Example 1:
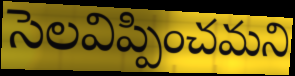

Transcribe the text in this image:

సెలవిప్పించమని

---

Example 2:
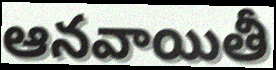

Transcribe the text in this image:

ఆనవాయితీ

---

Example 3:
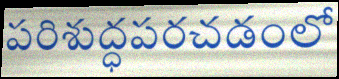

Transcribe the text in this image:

పరిశుద్ధపరచడంలో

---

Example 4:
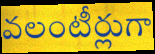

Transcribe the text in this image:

వలంటీర్లుగా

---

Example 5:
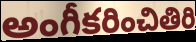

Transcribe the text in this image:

అంగీకరించితిరి